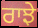
ਰਾਝੇ